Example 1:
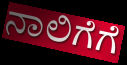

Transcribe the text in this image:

ನಾಲಿಗೆಗೆ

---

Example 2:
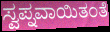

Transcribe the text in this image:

ಸ್ವಪ್ನವಾಯಿತಂತೆ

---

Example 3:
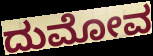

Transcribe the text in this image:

ದುಮೋವ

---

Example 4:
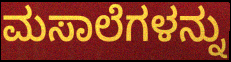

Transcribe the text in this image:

ಮಸಾಲೆಗಳನ್ನು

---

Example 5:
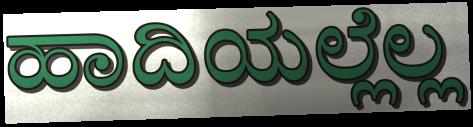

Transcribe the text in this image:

ಹಾದಿಯಲ್ಲೆಲ್ಲ